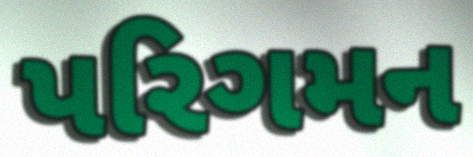
પરિગમન